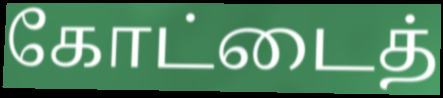
கோட்டைத்